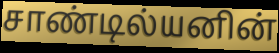
சாண்டில்யனின்